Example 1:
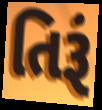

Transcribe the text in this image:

તિરૂં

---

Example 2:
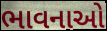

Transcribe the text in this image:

ભાવનાઓ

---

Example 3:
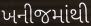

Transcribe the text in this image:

ખનીજમાંથી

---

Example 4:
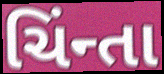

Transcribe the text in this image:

ચિંન્તા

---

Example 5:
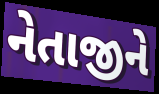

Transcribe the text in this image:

નેતાજીને